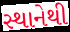
સ્થાનેથી